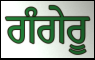
ਗੰਗੇਰੂ